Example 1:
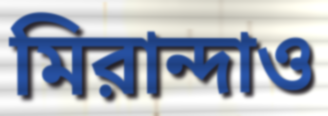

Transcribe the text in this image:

মিরান্দাও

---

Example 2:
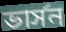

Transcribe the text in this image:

ভার্সন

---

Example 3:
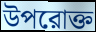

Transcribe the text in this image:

উপরোক্ত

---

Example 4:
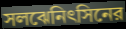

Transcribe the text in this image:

সলঝেনিৎসিনের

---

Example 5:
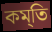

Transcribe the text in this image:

কম্‌তি